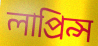
লাপ্রিন্স